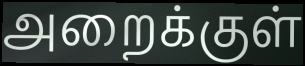
அறைக்குள்